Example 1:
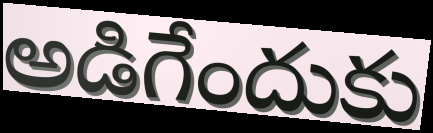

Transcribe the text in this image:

అడిగేందుకు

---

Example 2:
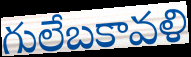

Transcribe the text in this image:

గులేబకావళి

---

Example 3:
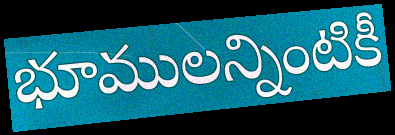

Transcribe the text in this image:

భూములన్నింటికీ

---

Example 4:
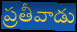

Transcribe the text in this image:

ప్రతీవాడు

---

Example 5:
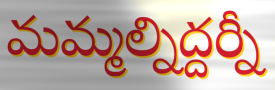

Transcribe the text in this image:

మమ్మల్నిద్దర్నీ